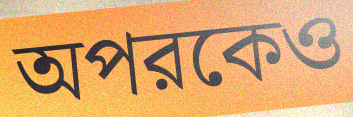
অপরকেও